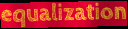
equalization